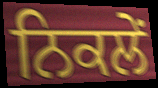
ਨਿਕਲੇਂ